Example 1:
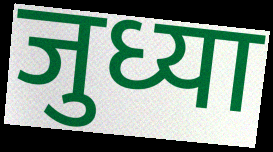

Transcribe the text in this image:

जुध्या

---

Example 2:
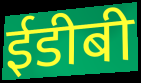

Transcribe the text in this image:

ईडीबी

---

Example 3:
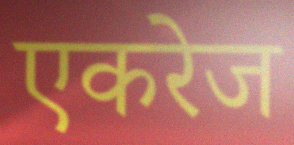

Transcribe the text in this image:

एकरेज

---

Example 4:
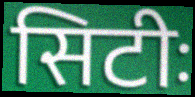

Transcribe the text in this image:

सिटीः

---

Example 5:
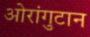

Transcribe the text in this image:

ओरांगुटान